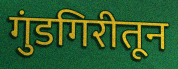
गुंडगिरीतून